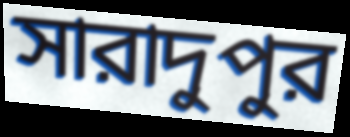
সারাদুপুর